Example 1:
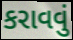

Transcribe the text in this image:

કરાવવું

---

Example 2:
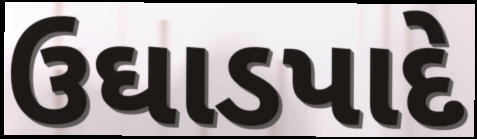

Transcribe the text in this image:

ઉઘાડપાદે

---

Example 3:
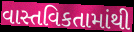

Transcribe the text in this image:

વાસ્તવિકતામાંથી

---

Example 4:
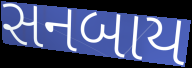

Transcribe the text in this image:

સનબાય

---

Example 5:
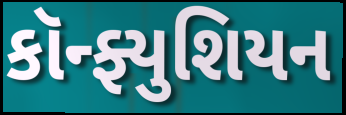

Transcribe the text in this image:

કૉન્ફ્યુશિયન